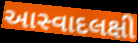
આસ્વાદલક્ષી